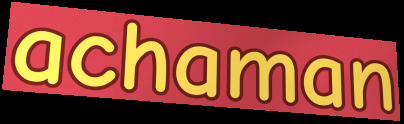
achaman